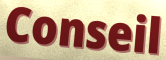
Conseil